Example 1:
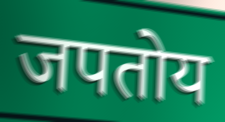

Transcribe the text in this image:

जपतोय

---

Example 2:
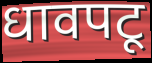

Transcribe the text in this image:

धावपटू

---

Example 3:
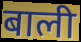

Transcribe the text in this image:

बाली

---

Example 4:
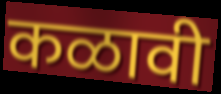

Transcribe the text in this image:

कळावी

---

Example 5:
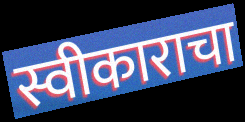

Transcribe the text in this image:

स्वीकाराचा